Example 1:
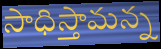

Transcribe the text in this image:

సాధిస్తామన్న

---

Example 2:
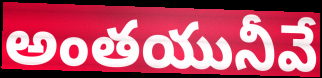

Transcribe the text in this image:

అంతయునీవే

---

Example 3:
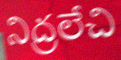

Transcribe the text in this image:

నిద్రలేచి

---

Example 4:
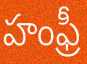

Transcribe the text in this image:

హంఫ్రీ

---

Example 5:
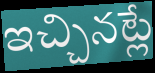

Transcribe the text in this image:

ఇచ్చినట్లే